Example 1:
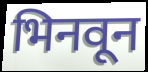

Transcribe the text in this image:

भिनवून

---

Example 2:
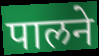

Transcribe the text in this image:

पालने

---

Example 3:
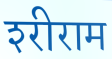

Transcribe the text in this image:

श्रीराम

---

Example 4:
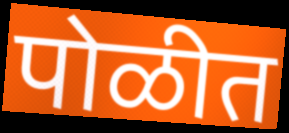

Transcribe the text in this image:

पोळीत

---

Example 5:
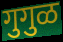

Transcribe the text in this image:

गुगुळ